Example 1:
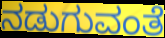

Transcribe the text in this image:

ನಡುಗುವಂತೆ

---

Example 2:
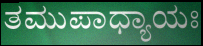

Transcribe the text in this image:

ತಮುಪಾಧ್ಯಾಯಃ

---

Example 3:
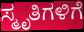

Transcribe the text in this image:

ಸ್ಮೃತಿಗಳಿಗೆ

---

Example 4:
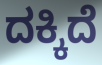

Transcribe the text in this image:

ದಕ್ಕಿದೆ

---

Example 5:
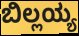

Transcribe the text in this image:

ಬಿಲ್ಲಯ್ಯ